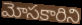
మోసకారిని